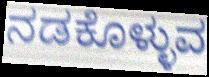
ನಡಕೊಳ್ಳುವ